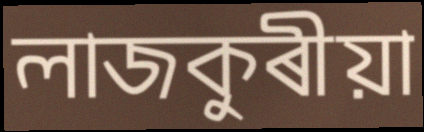
লাজকুৰীয়া